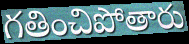
గతించిపోతారు